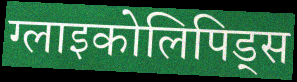
ग्लाइकोलिपिड्स